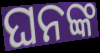
ଘନଙ୍କ